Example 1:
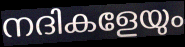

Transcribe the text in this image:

നദികളേയും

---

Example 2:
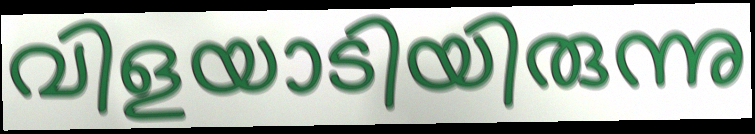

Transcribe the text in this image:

വിളയാടിയിരുന്നു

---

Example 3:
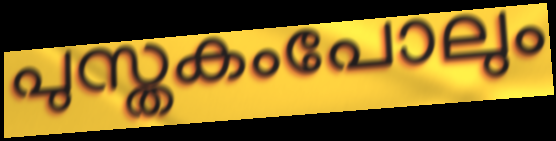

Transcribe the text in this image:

പുസ്തകംപോലും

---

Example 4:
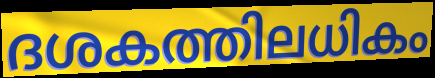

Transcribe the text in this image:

ദശകത്തിലധികം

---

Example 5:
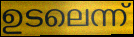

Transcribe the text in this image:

ഉടലെന്ന്